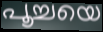
പൂച്ചയെ